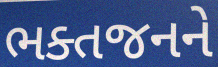
ભક્તજનને